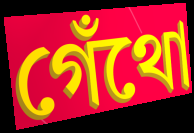
গেঁথো